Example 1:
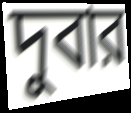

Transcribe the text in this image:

দুবার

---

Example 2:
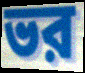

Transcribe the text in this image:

ভর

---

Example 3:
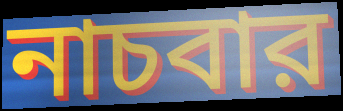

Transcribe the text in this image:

নাচবার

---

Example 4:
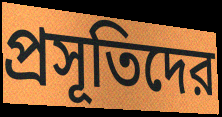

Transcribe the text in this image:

প্রসূতিদের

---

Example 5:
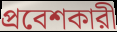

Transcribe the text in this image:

প্রবেশকারী